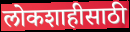
लोकशाहीसाठी